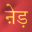
ऩेड़